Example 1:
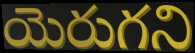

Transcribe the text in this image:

యెరుగని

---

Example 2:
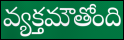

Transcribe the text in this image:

వ్యక్తమౌతోంది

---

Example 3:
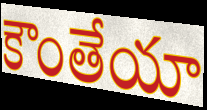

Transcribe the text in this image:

కౌంతేయా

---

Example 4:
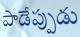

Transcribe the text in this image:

పాడేప్పుడు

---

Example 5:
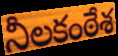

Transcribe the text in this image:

నీలకంఠేశ